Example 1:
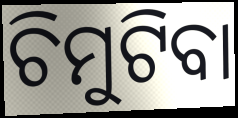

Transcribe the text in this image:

ଚିମୁଟିବା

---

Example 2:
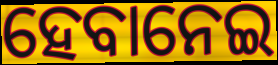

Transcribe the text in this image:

ହେବାନେଇ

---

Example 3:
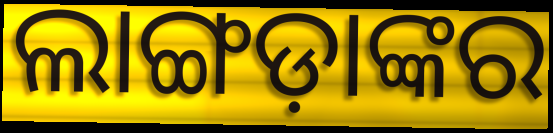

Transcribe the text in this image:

ଲାଙ୍ଗଡ଼ାଙ୍କର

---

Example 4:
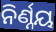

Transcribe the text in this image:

ନିର୍ଣ୍ନୟ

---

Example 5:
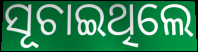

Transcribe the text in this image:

ସୂଚାଇଥିଲେ